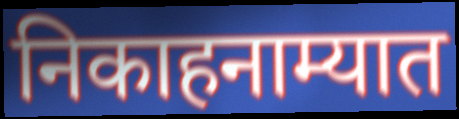
निकाहनाम्यात